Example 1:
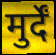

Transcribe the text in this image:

मुर्दें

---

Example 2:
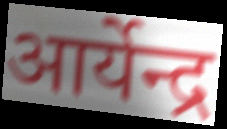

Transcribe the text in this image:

आर्येन्द्र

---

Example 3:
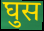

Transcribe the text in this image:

घुस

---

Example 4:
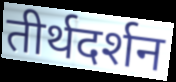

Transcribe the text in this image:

तीर्थदर्शन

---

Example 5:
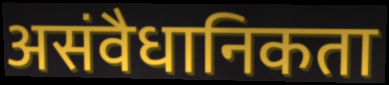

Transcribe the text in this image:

असंवैधानिकता